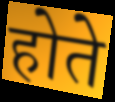
होते